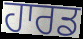
ਹਾਰਡ